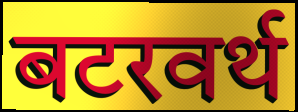
बटरवर्थ